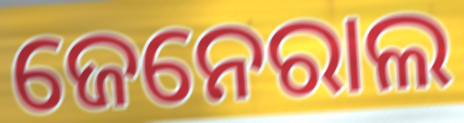
ଜେନେରାଲ